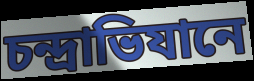
চন্দ্রাভিযানে